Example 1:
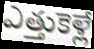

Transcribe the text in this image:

ఎత్తుకెళ్లే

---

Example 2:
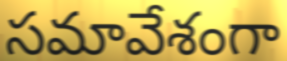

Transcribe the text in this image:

సమావేశంగా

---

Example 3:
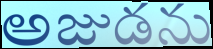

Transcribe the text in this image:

అజుడను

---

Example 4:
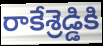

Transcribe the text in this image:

రాకేశ్రెడ్డికి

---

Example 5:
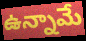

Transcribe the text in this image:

ఉన్నామే